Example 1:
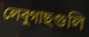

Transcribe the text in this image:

লেবুগাছগুলি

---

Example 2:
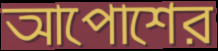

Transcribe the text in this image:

আপোশের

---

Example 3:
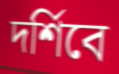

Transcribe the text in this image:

দর্শিবে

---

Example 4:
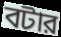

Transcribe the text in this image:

বটার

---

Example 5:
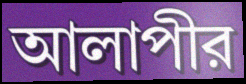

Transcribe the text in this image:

আলাপীর